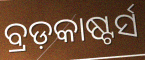
ବ୍ରଡ଼କାଷ୍ଟର୍ସ